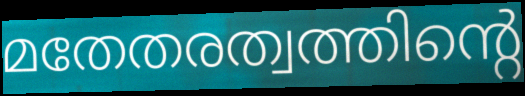
മതേതരത്വത്തിന്റെ